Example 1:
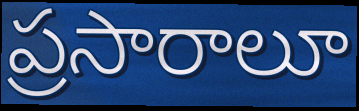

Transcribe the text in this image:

ప్రసారాలూ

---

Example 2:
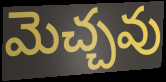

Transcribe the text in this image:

మెచ్చవు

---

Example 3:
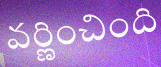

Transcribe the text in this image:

వర్ణించింది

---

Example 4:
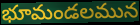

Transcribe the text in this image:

భూమండలమున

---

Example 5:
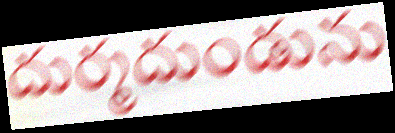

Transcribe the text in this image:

దుర్మదుండును